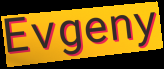
Evgeny